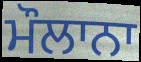
ਮੌਲਾਨਾ